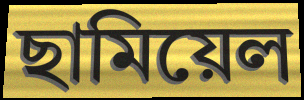
ছামিয়েল